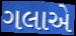
ગલાએ